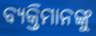
ବ୍ଯକ୍ତିମାନଙ୍କୁ